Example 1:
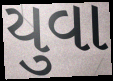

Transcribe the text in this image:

યુવા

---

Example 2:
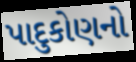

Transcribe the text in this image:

પાદુકોણનો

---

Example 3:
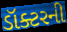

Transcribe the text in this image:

ડૉક્ટરની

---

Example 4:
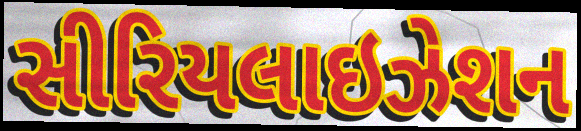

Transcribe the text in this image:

સીરિયલાઇઝેશન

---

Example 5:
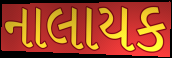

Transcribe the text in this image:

નાલાયક